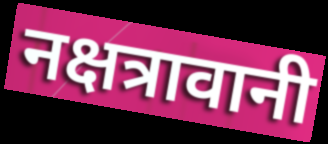
नक्षत्रावानी